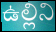
ఉల్లిని